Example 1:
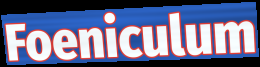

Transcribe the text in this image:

Foeniculum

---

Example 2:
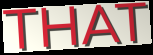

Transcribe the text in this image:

THAT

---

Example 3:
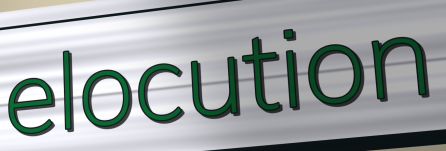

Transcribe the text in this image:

elocution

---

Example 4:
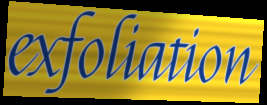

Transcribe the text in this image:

exfoliation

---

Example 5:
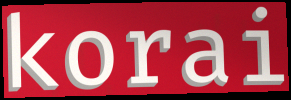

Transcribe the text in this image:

korai